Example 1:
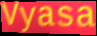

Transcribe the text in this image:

Vyasa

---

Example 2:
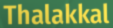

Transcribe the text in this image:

Thalakkal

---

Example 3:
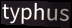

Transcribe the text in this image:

typhus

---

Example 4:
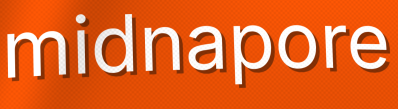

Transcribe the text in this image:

midnapore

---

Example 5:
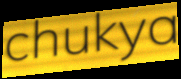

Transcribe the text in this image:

chukya